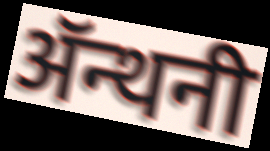
ॲन्थनी